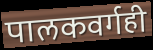
पालकवर्गही